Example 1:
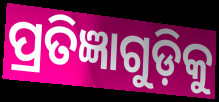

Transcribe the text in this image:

ପ୍ରତିଜ୍ଞାଗୁଡ଼ିକୁ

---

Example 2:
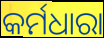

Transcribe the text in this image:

କର୍ମଧାରା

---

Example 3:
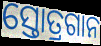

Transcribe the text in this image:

ସ୍ତୋତ୍ରଗାନ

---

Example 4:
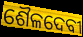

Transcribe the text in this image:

ଶୈଳଦେବୀ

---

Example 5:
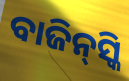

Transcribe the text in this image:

ବାଜିନ୍‌ସ୍କି